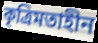
কৃত্রিমতাহীন